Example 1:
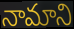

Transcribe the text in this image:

నామాని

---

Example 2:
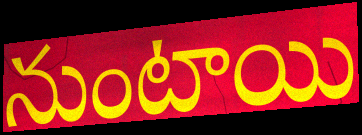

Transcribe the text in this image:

నుంటాయి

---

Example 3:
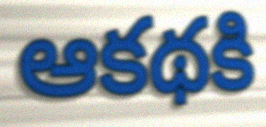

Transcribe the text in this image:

ఆకథకి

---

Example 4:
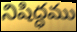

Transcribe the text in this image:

నిషిద్ధము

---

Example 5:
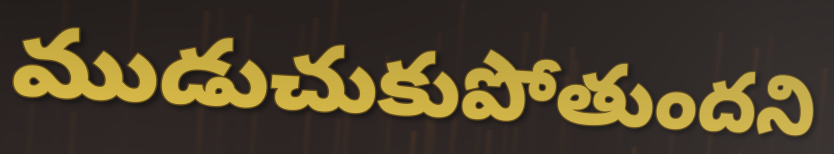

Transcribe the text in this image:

ముడుచుకుపోతుందని